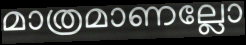
മാത്രമാണല്ലോ